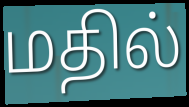
மதில்